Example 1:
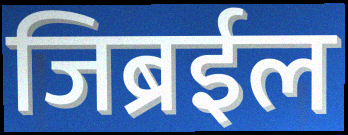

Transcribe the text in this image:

जिब्रईल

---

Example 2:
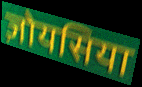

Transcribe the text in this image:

ज़ोयसिया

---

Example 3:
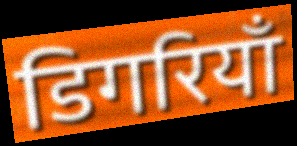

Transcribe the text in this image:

डिगरियाँ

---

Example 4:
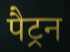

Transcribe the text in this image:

पैट्रन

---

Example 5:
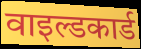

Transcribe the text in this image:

वाइल्डकार्ड